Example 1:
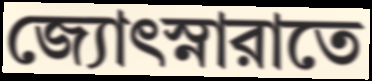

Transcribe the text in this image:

জ্যোৎস্নারাতে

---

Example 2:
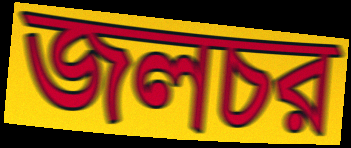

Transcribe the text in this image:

জলচর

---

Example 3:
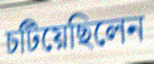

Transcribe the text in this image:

চটিয়েছিলেন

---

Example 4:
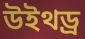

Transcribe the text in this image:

উইথড্র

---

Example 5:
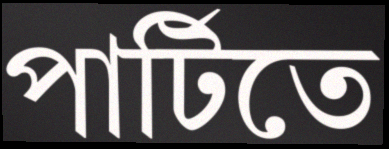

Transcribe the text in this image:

পার্টিতে